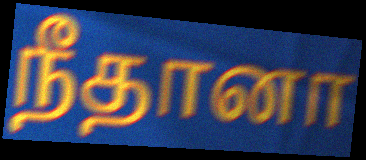
நீதானா